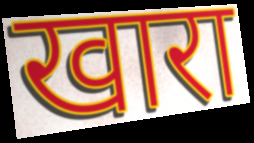
खारा